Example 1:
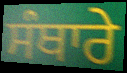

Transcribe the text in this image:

ਸੰਥਾਰੇ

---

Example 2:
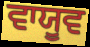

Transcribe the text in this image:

ਵਾਯੂਵ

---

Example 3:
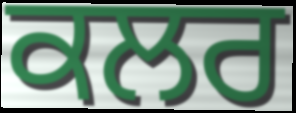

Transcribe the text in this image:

ਕਲਰ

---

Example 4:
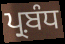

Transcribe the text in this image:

ਪ਼੍ਰਬੰਧ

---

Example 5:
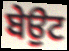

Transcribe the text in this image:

ਬੇਉਟ